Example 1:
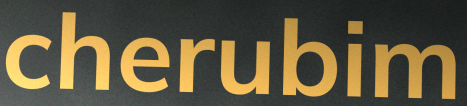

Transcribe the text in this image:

cherubim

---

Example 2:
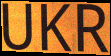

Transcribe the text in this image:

UKR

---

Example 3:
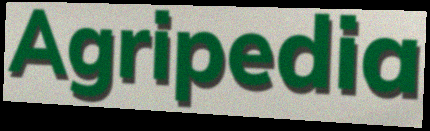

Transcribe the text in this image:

Agripedia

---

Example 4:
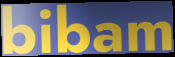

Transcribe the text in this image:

bibam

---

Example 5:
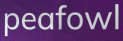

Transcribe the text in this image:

peafowl